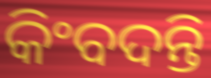
କିଂବଦନ୍ତି